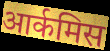
आर्कमिस